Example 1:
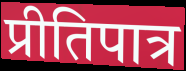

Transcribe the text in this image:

प्रीतिपात्र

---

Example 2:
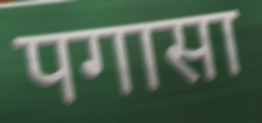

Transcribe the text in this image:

पगासा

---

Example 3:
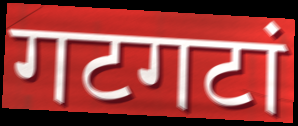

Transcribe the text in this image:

गटगटां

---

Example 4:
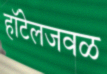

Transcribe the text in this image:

हॉटेलजवळ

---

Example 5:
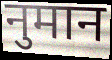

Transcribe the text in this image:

नुमान